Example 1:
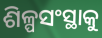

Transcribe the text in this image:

ଶିଳ୍ପସଂସ୍ଥାକୁ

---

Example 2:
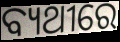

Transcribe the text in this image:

ବ୍ୟଥୀରେ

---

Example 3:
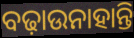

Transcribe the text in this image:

ବଢ଼ାଉନାହାନ୍ତି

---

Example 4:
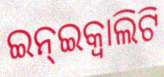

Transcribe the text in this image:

ଇନ୍ଇକ୍ଵାଲିଟି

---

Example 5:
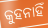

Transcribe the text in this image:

କୁହନାହିଁ